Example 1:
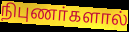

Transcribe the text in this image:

நிபுணர்களால்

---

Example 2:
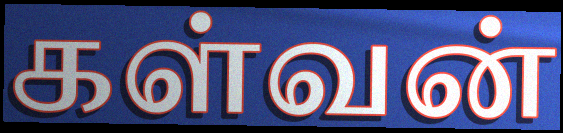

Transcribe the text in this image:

கள்வன்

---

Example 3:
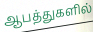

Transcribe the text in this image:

ஆபத்துகளில்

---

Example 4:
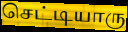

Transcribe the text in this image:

செட்டியாரு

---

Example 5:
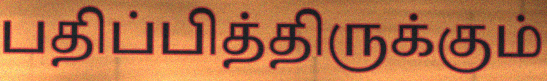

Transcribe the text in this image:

பதிப்பித்திருக்கும்